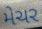
મેચર